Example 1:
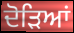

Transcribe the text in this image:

ਦੋੜਿਆਂ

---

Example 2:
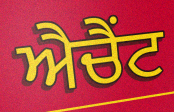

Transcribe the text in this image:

ਐਚੈਂਟ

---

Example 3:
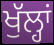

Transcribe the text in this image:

ਖੁੱਲ੍ਹਾਂ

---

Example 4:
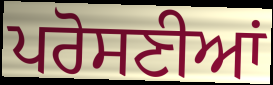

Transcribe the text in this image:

ਪਰੋਸਣੀਆਂ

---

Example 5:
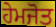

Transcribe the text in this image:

ਹੇਮਜੋਤ